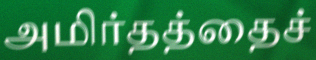
அமிர்தத்தைச்